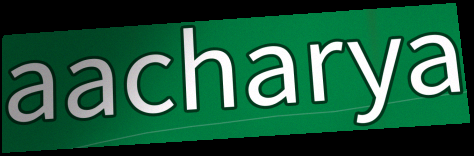
aacharya